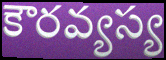
కౌరవ్యస్య